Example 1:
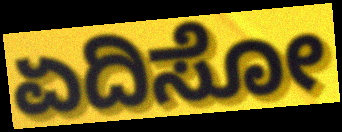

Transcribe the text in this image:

ಏದಿಸೋ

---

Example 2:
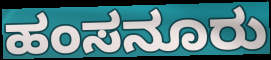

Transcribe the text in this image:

ಹಂಸನೂರು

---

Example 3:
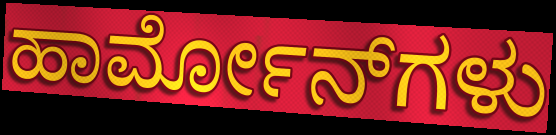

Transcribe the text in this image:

ಹಾರ್ಮೋನ್‌ಗಳು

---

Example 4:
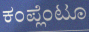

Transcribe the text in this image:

ಕಂಪ್ಲೆಂಟೂ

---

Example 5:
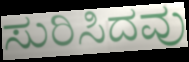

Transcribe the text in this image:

ಸುರಿಸಿದವು